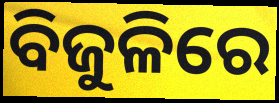
ବିଜୁଳିରେ